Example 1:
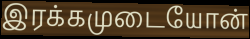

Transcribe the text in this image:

இரக்கமுடையோன்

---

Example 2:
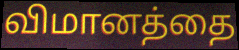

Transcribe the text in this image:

விமானத்தை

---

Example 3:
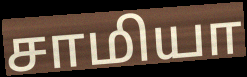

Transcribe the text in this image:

சாமியா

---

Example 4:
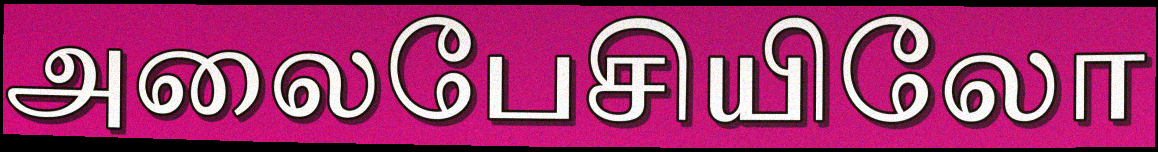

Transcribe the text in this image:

அலைபேசியிலோ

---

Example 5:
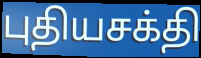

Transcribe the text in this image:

புதியசக்தி